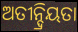
ଅତୀନ୍ଦ୍ରିୟତା